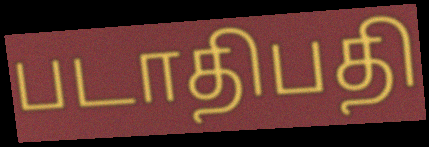
படாதிபதி